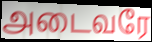
அடைவரே